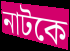
নাটকে